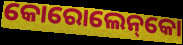
କୋରୋଲେନ୍‌କୋ